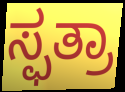
ಸ್ಫತ್ರಾ